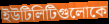
ইউটিলিটিগুলোকে